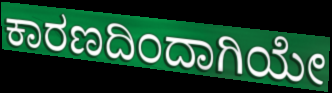
ಕಾರಣದಿಂದಾಗಿಯೇ